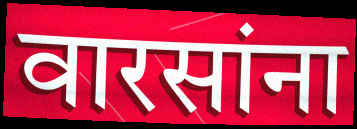
वारसांना